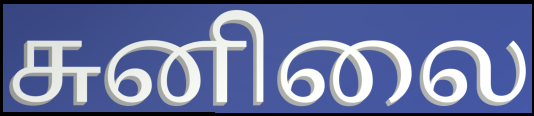
சுனிலை